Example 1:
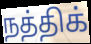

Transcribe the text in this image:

நத்திக்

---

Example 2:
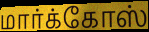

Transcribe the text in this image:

மார்க்கோஸ்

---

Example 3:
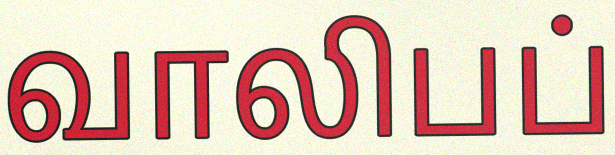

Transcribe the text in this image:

வாலிபப்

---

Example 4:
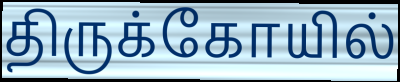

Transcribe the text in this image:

திருக்கோயில்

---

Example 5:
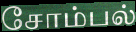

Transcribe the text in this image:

சோம்பல்